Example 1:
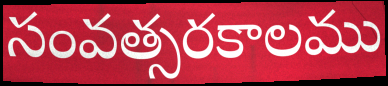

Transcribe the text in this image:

సంవత్సరకాలము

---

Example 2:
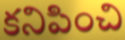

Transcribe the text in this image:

కనిపించి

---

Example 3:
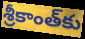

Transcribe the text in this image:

శ్రీకాంత్‌కు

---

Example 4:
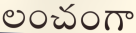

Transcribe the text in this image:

లంచంగా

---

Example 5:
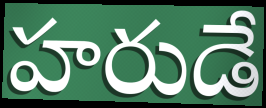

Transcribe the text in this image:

హరుడే